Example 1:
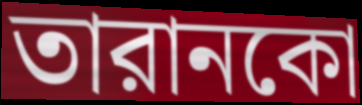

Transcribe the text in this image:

তারানকো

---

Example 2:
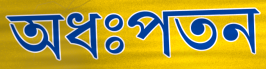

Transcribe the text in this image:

অধঃপতন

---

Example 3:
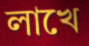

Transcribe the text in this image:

লাখে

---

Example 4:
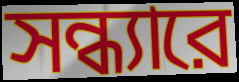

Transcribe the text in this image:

সন্ধ্যারে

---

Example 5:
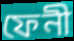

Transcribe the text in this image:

ফেনী